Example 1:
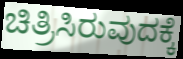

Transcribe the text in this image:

ಚಿತ್ರಿಸಿರುವುದಕ್ಕೆ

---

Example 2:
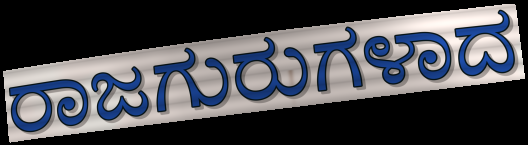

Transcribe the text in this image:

ರಾಜಗುರುಗಳಾದ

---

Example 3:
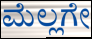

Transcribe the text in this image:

ಮೆಲ್ಲಗೇ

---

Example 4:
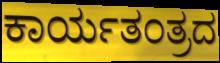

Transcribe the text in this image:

ಕಾರ್ಯತಂತ್ರದ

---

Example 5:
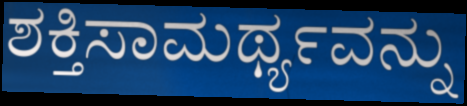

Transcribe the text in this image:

ಶಕ್ತಿಸಾಮರ್ಥ್ಯವನ್ನು